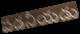
పడనీయడు